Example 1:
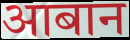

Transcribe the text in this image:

आबान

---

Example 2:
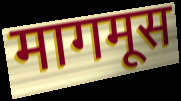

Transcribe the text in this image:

मागमूस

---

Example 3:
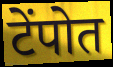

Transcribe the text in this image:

टेंपोत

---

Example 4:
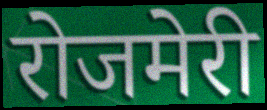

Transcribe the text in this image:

रोजमेरी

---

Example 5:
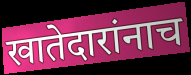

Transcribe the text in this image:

खातेदारांनाच